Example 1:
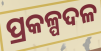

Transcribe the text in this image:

ପ୍ରକଳ୍ପଦଳ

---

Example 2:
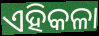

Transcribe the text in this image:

ଏହିକଳା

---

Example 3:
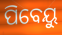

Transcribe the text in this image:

ପିବେୟୁ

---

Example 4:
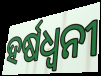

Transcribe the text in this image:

ହର୍ଷଧ୍ୱନୀ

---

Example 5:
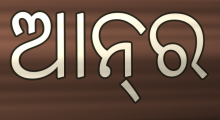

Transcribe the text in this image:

ଆନ୍‌ର